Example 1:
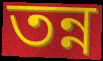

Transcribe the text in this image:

তন্ন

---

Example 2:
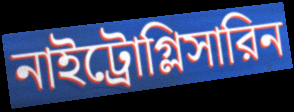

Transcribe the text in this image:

নাইট্রোগ্লিসারিন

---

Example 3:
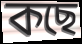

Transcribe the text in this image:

কছে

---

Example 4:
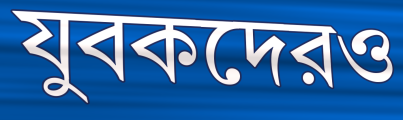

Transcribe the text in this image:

যুবকদেরও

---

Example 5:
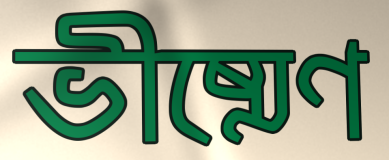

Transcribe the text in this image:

ভীষ্মেণ